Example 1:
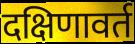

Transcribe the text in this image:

दक्षिणावर्त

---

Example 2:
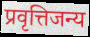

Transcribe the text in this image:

प्रवृत्तिजन्य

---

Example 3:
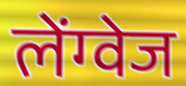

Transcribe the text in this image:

लेंग्वेज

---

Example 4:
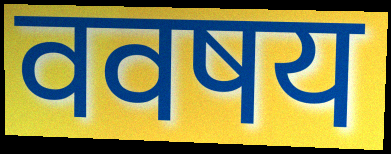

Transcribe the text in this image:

ववषय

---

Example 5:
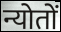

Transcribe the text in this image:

न्योतों